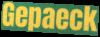
Gepaeck